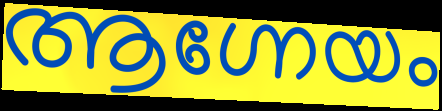
ആഗ്നേയം